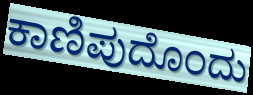
ಕಾಣಿಪುದೊಂದು